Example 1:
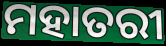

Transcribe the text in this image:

ମହାତରୀ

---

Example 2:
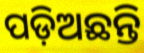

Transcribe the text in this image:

ପଡ଼ିଅଛନ୍ତି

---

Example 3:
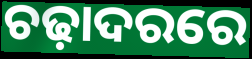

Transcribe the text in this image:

ଚଢ଼ାଦରରେ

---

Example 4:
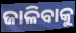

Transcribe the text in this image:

ଜାଳିବାକୁ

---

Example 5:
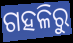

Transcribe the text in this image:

ଗହଳିରୁ